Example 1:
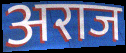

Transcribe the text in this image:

अराज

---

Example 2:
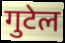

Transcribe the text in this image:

गुटेल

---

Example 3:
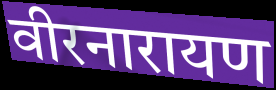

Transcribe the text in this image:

वीरनारायण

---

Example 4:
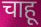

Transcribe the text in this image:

चाहू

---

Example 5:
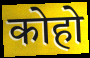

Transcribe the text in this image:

कोहो